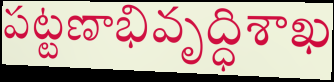
పట్టణాభివృద్ధిశాఖ